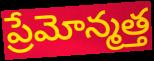
ప్రేమోన్మత్త